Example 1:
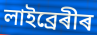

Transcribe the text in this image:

লাইব্ৰেৰীৰ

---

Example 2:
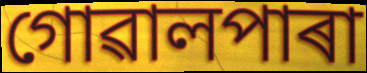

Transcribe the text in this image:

গোৱালপাৰা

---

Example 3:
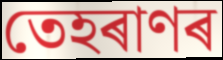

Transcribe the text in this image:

তেহৰাণৰ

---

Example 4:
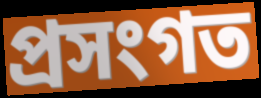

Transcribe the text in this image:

প্ৰসংগত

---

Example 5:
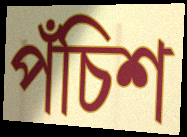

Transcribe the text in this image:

পঁচিশ